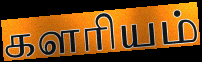
களரியம்